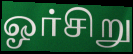
ஓர்சிறு